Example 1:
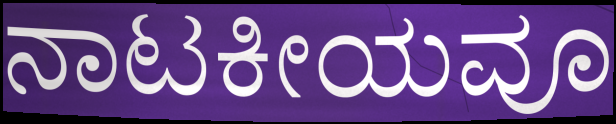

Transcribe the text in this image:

ನಾಟಕೀಯವೂ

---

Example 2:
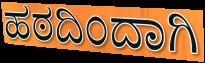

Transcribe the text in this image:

ಹಠದಿಂದಾಗಿ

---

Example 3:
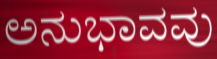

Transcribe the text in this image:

ಅನುಭಾವವು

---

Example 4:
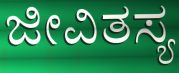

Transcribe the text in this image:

ಜೀವಿತಸ್ಯ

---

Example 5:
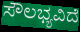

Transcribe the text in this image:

ಸೌಲಭ್ಯವಿದೆ